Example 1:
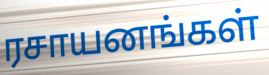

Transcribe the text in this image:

ரசாயனங்கள்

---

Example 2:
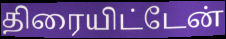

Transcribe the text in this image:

திரையிட்டேன்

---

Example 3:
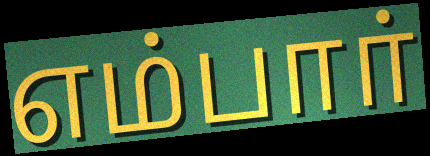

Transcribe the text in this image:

எம்பார்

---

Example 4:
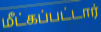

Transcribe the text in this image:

மீட்கப்பட்டார்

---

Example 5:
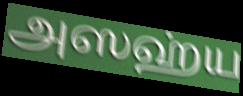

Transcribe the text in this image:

அஸஹ்ய